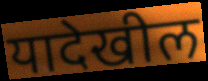
यादेखील